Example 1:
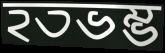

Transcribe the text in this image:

হতভম্ভ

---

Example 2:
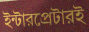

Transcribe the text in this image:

ইন্টারপ্রেটারই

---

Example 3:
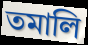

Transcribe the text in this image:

তমালি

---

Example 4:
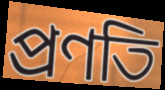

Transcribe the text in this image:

প্রণতি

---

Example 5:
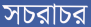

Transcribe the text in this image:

সচরাচর